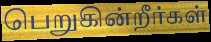
பெறுகின்றீர்கள்